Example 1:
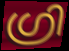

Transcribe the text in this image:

ഗ്രി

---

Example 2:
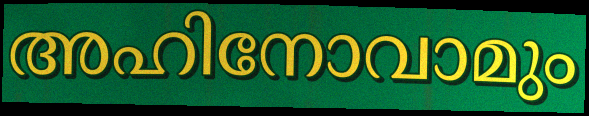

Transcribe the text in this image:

അഹിനോവാമും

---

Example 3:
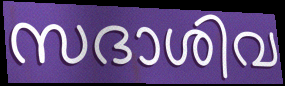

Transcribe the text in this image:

സദാശിവ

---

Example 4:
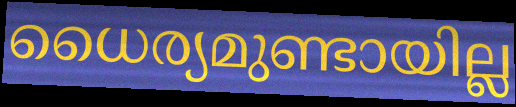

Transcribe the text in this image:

ധൈര്യമുണ്ടായില്ല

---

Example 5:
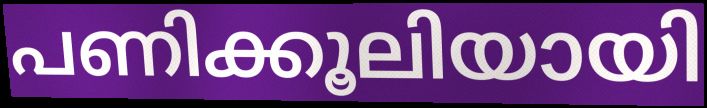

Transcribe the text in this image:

പണിക്കൂലിയായി